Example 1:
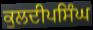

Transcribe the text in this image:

ਕੁਲਦੀਪਸਿੰਘ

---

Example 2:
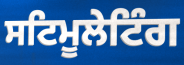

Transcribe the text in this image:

ਸਟਿਮੂਲੇਟਿੰਗ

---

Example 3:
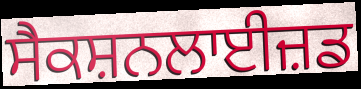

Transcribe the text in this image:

ਸੈਕਸ਼ਨਲਾਈਜ਼ਡ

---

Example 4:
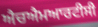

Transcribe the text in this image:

ਐਚਐਮਆਰਟੀਸੀ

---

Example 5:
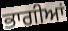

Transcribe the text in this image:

ਭਾਗੀਆਂ